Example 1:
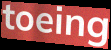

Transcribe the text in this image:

toeing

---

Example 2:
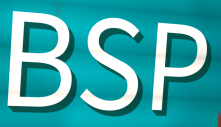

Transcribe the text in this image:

BSP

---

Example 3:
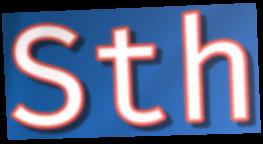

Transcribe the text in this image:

Sth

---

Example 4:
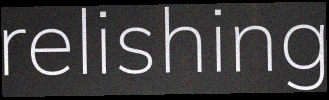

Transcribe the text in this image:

relishing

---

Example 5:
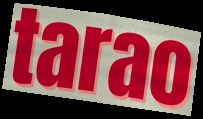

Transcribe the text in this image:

tarao